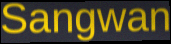
Sangwan